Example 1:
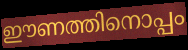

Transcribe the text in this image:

ഈണത്തിനൊപ്പം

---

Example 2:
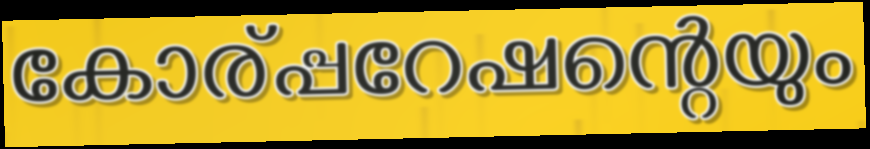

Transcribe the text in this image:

കോര്പ്പറേഷന്റെയും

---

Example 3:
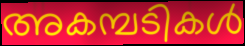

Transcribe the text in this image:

അകമ്പടികൾ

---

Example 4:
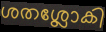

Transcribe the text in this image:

ശതശ്ലോകി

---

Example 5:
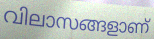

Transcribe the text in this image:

വിലാസങ്ങളാണ്